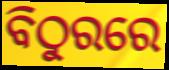
ବିଠୁରରେ